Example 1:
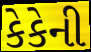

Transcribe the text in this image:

કેકેની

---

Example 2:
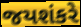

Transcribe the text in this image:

જયશંકરે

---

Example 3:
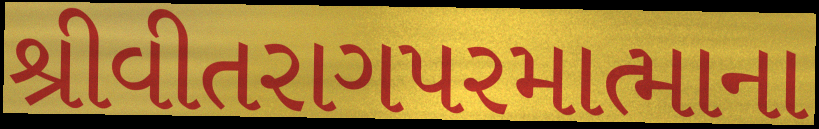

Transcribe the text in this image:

શ્રીવીતરાગપરમાત્માના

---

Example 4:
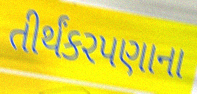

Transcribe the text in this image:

તીર્થંકરપણાના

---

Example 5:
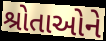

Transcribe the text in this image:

શ્રોતાઓને